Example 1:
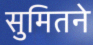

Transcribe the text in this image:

सुमितने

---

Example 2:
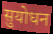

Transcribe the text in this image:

सुयोधन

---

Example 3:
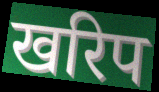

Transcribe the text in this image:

खरिप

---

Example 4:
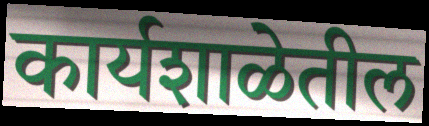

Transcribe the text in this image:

कार्यशाळेतील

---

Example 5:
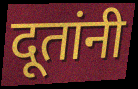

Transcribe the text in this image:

दूतांनी